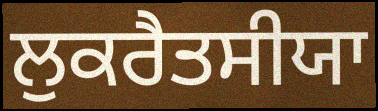
ਲੁਕਰੈਤਸੀਯਾ